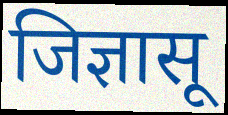
जिज्ञासू